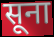
सूना